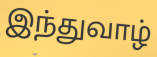
இந்துவாழ்